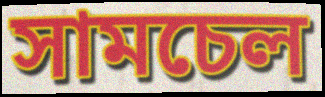
সামচেল